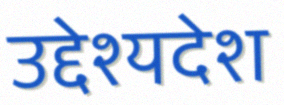
उद्देश्यदेश